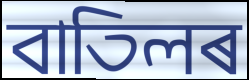
বাতিলৰ